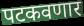
पटकवणार